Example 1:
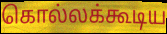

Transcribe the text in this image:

கொல்லக்கூடிய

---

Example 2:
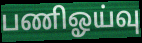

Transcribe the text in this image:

பணிஓய்வு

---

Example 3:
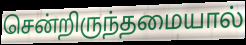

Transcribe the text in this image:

சென்றிருந்தமையால்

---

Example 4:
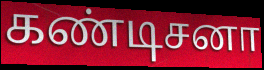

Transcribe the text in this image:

கண்டிசனா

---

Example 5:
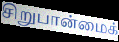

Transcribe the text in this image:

சிறுபான்மைக்